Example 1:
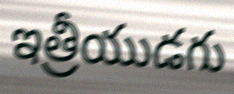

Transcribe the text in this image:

ఇత్రీయుడగు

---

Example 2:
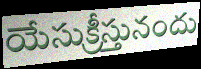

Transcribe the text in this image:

యేసుక్రీస్తునందు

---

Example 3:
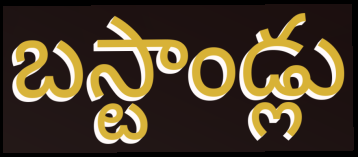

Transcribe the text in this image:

బస్టాండ్లు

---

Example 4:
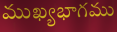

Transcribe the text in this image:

ముఖ్యభాగము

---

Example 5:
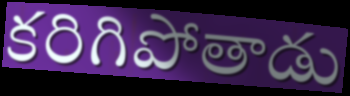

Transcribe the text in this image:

కరిగిపోతాడు